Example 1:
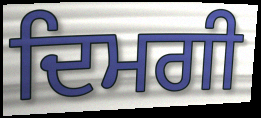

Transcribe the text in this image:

ਦਿਮਗੀ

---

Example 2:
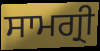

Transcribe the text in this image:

ਸਾਮਗ੍ਰੀ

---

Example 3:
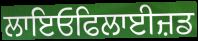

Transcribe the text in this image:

ਲਾਇਓਫਿਲਾਈਜ਼ਡ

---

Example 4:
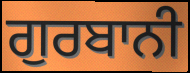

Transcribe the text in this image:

ਗੁਰਬਾਨੀ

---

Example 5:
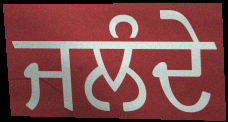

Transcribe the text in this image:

ਜਲੰਦੇ